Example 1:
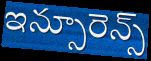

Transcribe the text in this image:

ఇన్సూరెన్స్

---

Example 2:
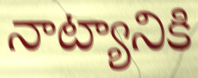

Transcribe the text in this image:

నాట్యానికి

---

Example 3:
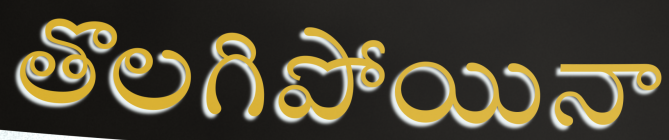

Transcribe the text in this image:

తొలగిపోయినా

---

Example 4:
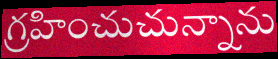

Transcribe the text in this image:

గ్రహించుచున్నాను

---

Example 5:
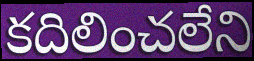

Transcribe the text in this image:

కదిలించలేని